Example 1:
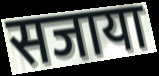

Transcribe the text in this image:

सजाया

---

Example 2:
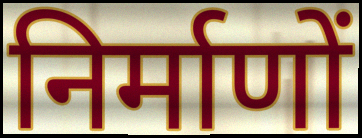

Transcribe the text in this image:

निर्माणों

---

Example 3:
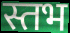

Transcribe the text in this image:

स्तभ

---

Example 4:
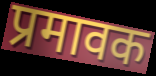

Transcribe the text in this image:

प्रमावक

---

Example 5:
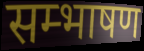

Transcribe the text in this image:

सम्भाषण